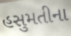
હસુમતીના